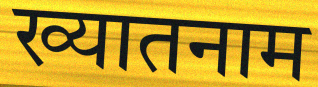
ख्यातनाम